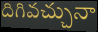
దిగివచ్చునా